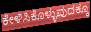
ಕೇಳಿಸಿಕೊಳ್ಳುವುದಕ್ಕೂ